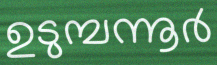
ഉടുമ്പന്നൂർ